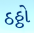
ઠઠ્ઠો